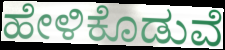
ಹೇಳಿಕೊಡುವೆ